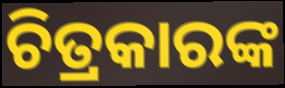
ଚିତ୍ରକାରଙ୍କ